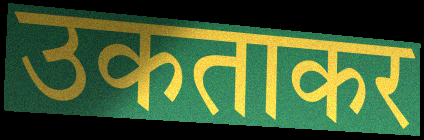
उकताकर